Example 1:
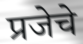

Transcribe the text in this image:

प्रजेचे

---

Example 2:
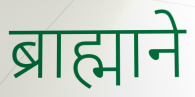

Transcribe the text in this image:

ब्राह्माने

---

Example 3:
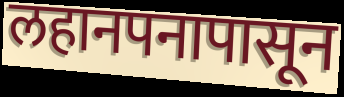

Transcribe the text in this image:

लहानपनापासून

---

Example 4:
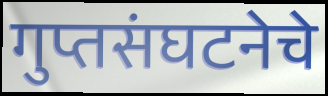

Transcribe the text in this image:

गुप्तसंघटनेचे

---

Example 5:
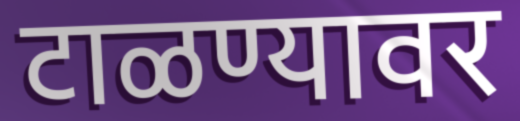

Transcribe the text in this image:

टाळण्यावर